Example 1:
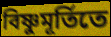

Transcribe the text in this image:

বিষ্ণুমূর্তিতে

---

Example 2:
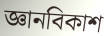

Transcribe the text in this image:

জ্ঞানবিকাশ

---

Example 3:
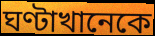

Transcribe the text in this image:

ঘণ্টাখানেকে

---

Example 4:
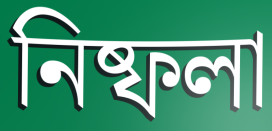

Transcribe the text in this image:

নিষ্ফলা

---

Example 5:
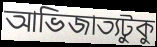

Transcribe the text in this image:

আভিজাত্যটুকু